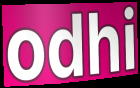
odhi